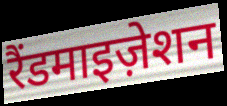
रैंडमाइज़ेशन